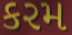
કરમ